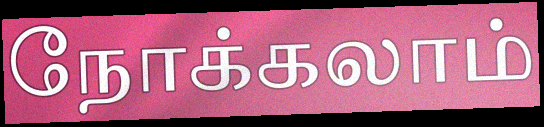
நோக்கலாம்